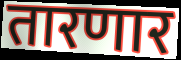
तारणार